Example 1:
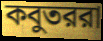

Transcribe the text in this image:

কবুতররা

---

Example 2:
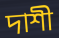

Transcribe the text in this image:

দাশী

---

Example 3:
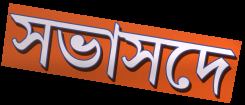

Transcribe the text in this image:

সভাসদে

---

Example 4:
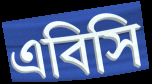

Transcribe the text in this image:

এবিসি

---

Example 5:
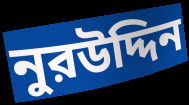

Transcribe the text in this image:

নুরউদ্দিন